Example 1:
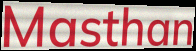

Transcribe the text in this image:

Masthan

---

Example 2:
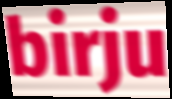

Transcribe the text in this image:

birju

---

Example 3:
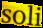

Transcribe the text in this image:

soli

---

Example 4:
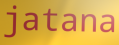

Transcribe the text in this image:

jatana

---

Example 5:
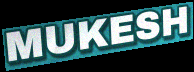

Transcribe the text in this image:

MUKESH